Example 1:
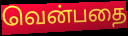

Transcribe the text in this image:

வென்பதை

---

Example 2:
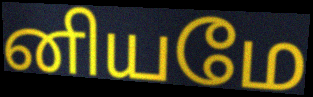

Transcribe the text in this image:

னியமே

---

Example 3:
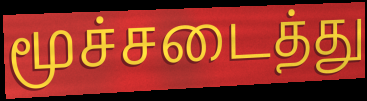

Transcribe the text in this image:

மூச்சடைத்து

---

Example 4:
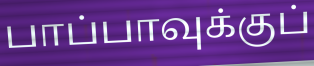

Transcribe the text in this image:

பாப்பாவுக்குப்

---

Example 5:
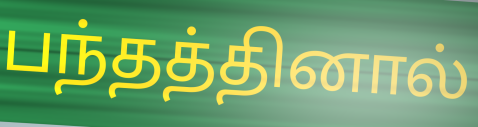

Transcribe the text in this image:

பந்தத்தினால்